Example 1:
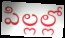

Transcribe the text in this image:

పిల్లల్లో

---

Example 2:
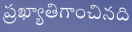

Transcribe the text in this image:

ప్రఖ్యాతిగాంచినది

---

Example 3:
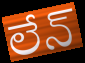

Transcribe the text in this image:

లేన్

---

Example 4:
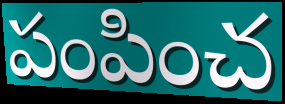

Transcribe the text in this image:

పంపించ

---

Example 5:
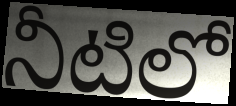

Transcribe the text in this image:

నీటిలో